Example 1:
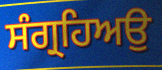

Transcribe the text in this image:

ਸੰਗ੍ਰਹਿਅਉ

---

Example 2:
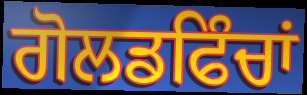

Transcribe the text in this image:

ਗੋਲਡਫਿੰਚਾਂ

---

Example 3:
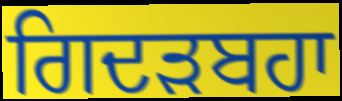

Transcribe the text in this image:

ਗਿਦੜਬਹਾ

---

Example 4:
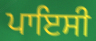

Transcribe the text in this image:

ਪਾਇਸੀ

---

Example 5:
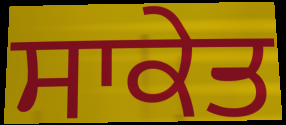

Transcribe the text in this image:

ਸਾਕੇਤ